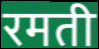
रमती